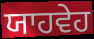
ਯਾਹਵੇਹ